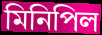
মিনিপিল